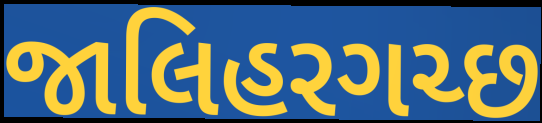
જાલિહરગચ્છ